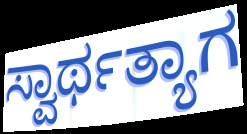
ಸ್ವಾರ್ಥತ್ಯಾಗ